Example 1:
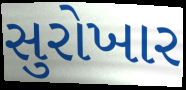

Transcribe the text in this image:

સુરોખાર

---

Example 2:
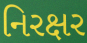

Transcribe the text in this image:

નિરક્ષર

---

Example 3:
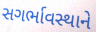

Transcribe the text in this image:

સગર્ભાવસ્થાને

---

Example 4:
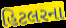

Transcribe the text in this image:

હિટલરના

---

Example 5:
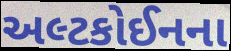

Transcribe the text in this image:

અલ્ટકોઈનના